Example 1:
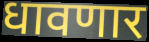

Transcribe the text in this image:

धावणार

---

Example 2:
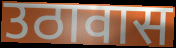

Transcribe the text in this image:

उठावास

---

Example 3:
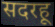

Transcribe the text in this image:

सदरहू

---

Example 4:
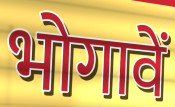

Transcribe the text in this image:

भोगावें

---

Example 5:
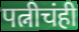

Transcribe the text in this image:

पत्नीचंही